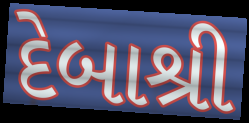
દેબાશ્રી